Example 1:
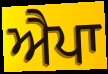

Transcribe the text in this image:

ਐਪਾ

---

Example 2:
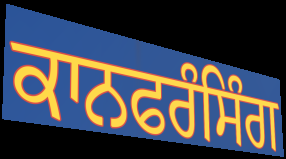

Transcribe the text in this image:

ਕਾਨਫਰੰਸਿੰਗ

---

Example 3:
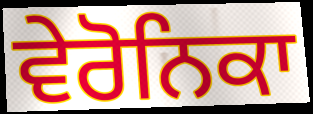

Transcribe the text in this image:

ਵੇਰੋਨਿਕਾ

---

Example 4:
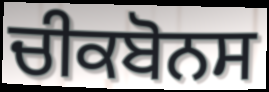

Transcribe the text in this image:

ਚੀਕਬੋਨਸ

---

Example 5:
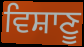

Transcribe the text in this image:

ਵਿਸ਼ਾਣੂ